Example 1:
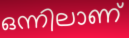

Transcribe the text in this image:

ഒന്നിലാണ്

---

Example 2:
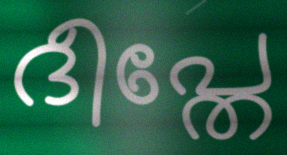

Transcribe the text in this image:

ദീപ്തേ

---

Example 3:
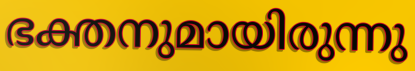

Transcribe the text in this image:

ഭക്തനുമായിരുന്നു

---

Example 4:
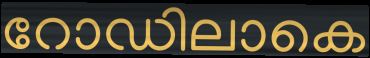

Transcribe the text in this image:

റോഡിലാകെ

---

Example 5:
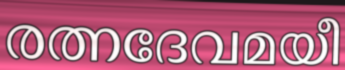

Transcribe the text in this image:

രത്നദേവമയീ